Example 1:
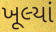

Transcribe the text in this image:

ખૂલ્યાં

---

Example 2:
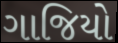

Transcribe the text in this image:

ગાજિયો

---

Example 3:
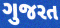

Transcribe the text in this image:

ગુજરત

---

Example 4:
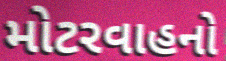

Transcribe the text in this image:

મોટરવાહનો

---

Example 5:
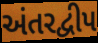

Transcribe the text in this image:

અંતરદ્વીપ